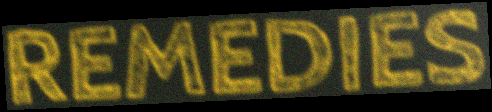
REMEDIES